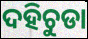
ଦହିଚୁଡା